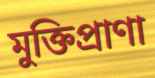
মুক্তিপ্রাণা